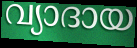
വ്യാദായ